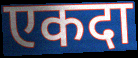
एकदा